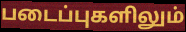
படைப்புகளிலும்